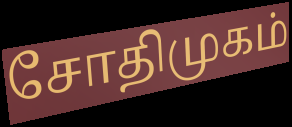
சோதிமுகம்